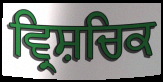
ਵ੍ਰਿਸ਼ਚਿਕ